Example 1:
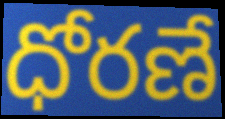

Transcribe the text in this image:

ధోరణే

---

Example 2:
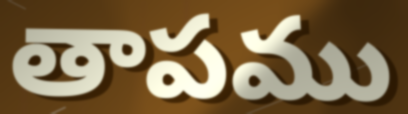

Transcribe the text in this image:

తాపము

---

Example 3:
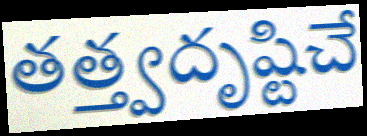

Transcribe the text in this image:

తత్త్వదృష్టిచే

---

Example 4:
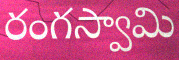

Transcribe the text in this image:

రంగస్వామి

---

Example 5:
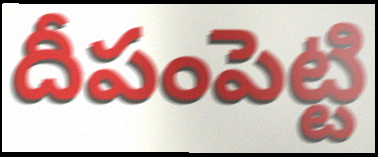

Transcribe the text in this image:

దీపంపెట్టి